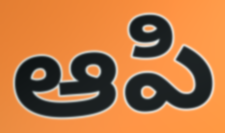
ఆపి